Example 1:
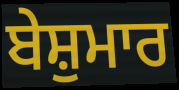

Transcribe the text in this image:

ਬੇਸ਼ੁਮਾਰ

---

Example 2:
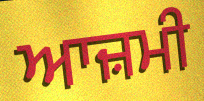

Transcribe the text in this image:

ਆਜ਼ਮੀ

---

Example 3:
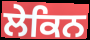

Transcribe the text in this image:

ਲੇਕਿਨ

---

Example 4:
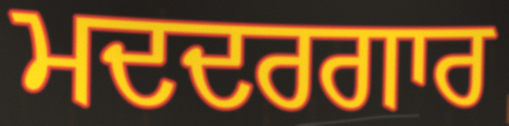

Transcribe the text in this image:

ਮਦਦਰਗਾਰ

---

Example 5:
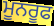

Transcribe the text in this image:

ਮੂਨਰੂਫ